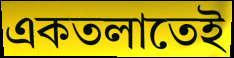
একতলাতেই